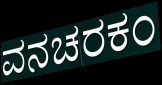
ವನಚರಕಂ